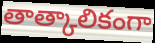
తాత్కాలికంగా